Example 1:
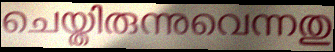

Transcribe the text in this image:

ചെയ്തിരുന്നുവെന്നതു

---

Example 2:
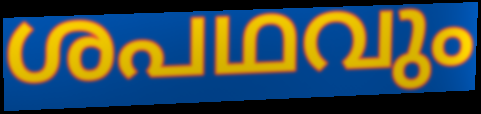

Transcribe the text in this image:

ശപഥവും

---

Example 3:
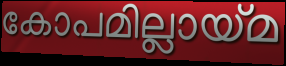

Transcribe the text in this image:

കോപമില്ലായ്മ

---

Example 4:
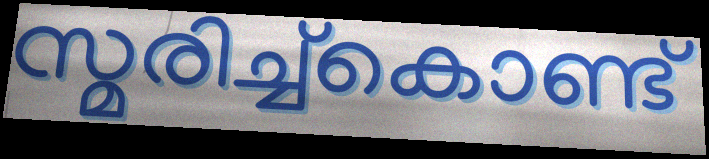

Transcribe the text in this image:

സ്മരിച്ച്കൊണ്ട്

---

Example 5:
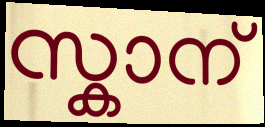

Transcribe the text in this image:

സ്കാന്